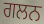
ਗਲਨ